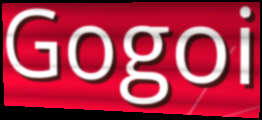
Gogoi